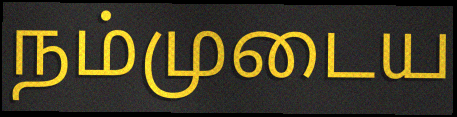
நம்முடைய